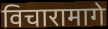
विचारामागे